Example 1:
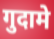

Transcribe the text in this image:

गुदामे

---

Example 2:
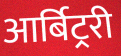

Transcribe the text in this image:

आर्बिट्ररी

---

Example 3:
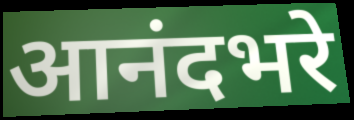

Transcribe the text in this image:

आनंदभरे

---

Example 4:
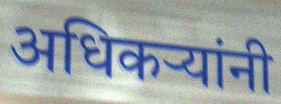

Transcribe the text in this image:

अधिकऱ्यांनी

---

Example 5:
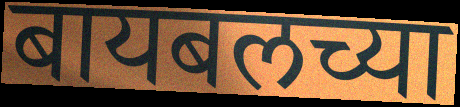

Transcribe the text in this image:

बायबलच्या